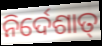
ନିର୍ଦେଶାତ୍